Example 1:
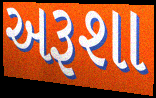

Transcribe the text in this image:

અરૂશા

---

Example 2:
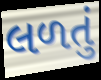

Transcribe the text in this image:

લળતું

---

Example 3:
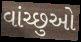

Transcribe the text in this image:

વાંચ્છુઓ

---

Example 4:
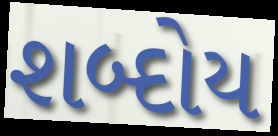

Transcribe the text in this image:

શબ્દોય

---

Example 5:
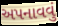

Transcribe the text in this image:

અપનાવવું